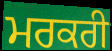
ਮਰਕਰੀ